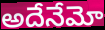
అదేనేమో